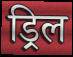
ड्रिल